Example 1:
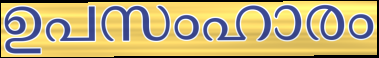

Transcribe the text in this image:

ഉപസംഹാരം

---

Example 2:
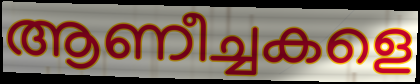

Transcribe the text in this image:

ആണീച്ചകളെ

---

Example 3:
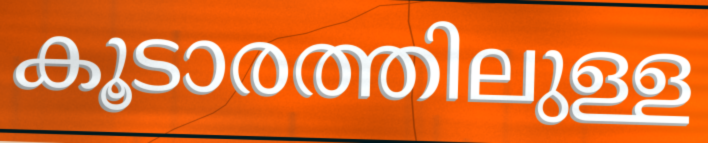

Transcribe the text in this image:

കൂടാരത്തിലുള്ള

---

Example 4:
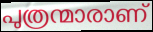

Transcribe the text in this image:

പുത്രന്മാരാണ്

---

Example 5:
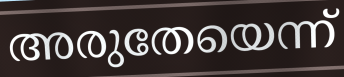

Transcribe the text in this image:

അരുതേയെന്ന്